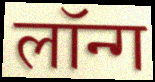
लॉन्ग